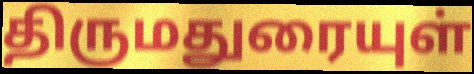
திருமதுரையுள்